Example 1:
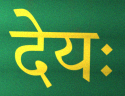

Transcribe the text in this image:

देयः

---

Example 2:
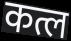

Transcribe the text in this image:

कत्‍ल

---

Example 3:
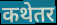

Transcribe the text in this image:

कथेतर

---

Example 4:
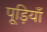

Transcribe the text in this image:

पूड़ियाँ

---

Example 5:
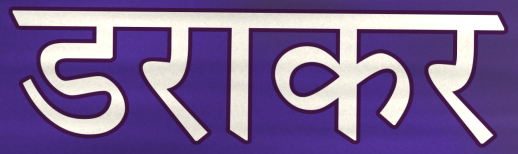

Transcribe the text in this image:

डराकर